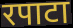
रपाटा